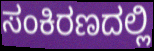
ಸಂಕಿರಣದಲ್ಲಿ